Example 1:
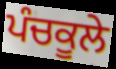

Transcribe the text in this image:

ਪੰਚਕੂਲੇ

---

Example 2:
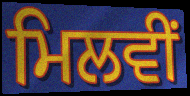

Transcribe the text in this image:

ਮਿਲਵੀਂ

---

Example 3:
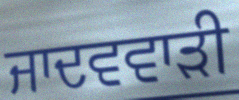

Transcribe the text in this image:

ਜਾਦਵਵਾੜੀ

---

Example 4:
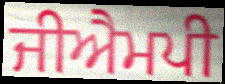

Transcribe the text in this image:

ਜੀਐਮਪੀ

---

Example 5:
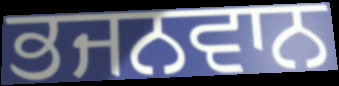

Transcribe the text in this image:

ਭਜਨਵਾਨ